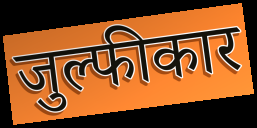
जुल्फीकार